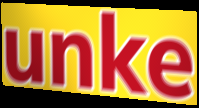
unke